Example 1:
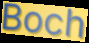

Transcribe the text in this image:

Boch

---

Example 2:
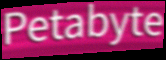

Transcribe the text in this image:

Petabyte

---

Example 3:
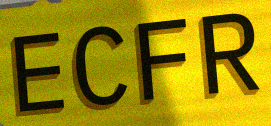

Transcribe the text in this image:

ECFR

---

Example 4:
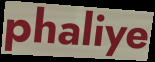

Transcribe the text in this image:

phaliye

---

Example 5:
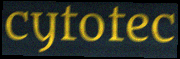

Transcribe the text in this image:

cytotec